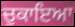
ਚੁਕਾਇਆ